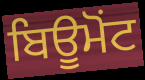
ਬਿਊਮੋਂਟ